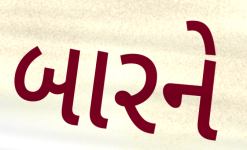
બારને